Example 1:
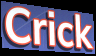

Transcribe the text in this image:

Crick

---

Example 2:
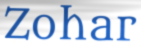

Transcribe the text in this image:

Zohar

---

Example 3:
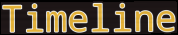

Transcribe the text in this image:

Timeline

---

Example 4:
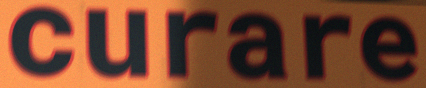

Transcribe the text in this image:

curare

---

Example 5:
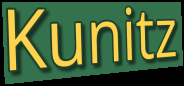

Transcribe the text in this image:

Kunitz